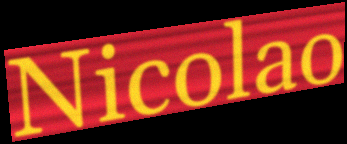
Nicolao